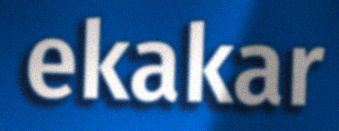
ekakar